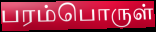
பரம்பொருள்